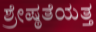
ಶ್ರೇಷ್ಠತೆಯತ್ತ